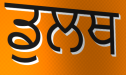
ਡੁਲਥ